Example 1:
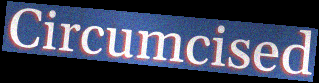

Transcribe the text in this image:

Circumcised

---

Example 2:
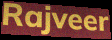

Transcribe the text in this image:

Rajveer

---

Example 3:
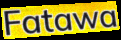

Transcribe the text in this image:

Fatawa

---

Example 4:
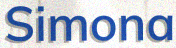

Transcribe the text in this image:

Simona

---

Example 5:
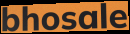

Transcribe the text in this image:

bhosale